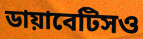
ডায়াবেটিসও